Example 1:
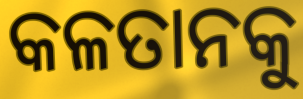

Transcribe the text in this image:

କଳତାନକୁ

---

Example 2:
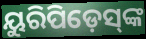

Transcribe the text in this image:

ୟୁରିପିଡ଼େସ୍‌ଙ୍କ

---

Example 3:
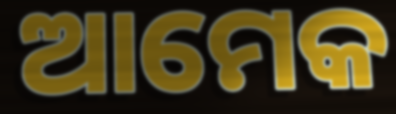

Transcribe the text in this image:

ଆମେକ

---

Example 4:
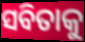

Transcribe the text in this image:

ସବିତାକୁ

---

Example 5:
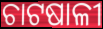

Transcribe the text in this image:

ଚାଟଷାଳୀ